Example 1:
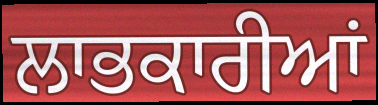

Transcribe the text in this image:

ਲਾਭਕਾਰੀਆਂ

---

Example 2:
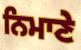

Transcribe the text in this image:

ਨਿਮਾਣੇ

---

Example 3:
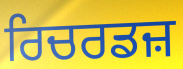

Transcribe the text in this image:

ਰਿਚਰਡਜ਼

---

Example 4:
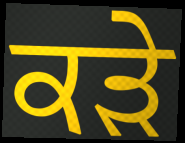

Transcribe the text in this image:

ਕੜੇ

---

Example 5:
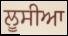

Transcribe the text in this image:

ਲੂਸੀਆ